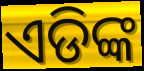
ଏଡିଙ୍କ